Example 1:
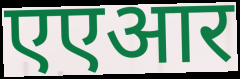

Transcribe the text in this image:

एएआर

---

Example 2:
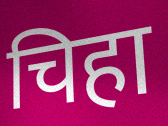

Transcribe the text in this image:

चिहा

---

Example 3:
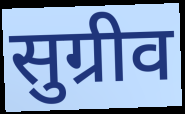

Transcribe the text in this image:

सुग्रीव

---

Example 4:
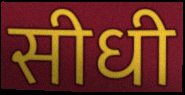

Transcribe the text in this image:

सीधी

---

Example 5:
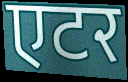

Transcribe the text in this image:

एटर